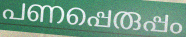
പണപ്പെരുപ്പം